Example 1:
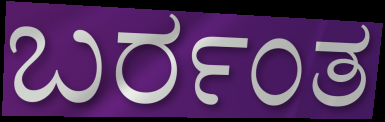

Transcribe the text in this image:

ಬರ್ರಂತ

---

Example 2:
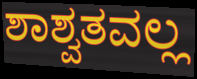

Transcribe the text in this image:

ಶಾಶ್ವತವಲ್ಲ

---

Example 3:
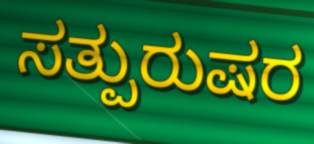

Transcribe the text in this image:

ಸತ್ಪುರುಷರ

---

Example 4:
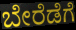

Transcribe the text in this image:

ಬೇರೆಡೆಗೆ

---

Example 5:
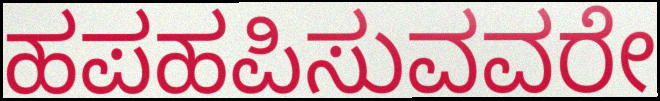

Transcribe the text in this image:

ಹಪಹಪಿಸುವವರೇ